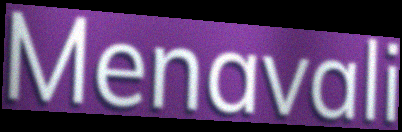
Menavali